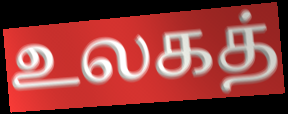
உலகத்